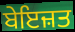
ਬੇਇਜ਼ਤ